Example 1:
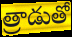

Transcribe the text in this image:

త్రాడుతో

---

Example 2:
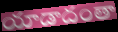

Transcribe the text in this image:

యాడాదంతా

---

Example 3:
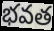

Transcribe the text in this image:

భవత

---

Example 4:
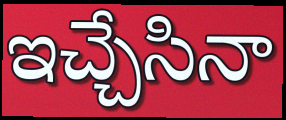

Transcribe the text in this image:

ఇచ్చేసినా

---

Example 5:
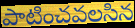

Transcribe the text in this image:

పాటించవలసిన